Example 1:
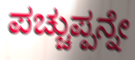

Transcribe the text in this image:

ಪಚ್ಚುಪ್ಪನ್ನೇ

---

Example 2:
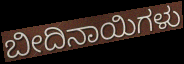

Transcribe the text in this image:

ಬೀದಿನಾಯಿಗಳು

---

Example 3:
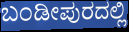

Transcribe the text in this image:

ಬಂಡೀಪುರದಲ್ಲಿ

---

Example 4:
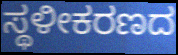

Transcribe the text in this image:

ಸ್ಥಳೀಕರಣದ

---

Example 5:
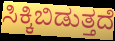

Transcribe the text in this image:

ಸಿಕ್ಕಿಬಿಡುತ್ತದೆ